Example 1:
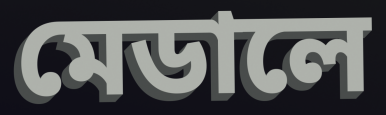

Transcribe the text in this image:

মেডালে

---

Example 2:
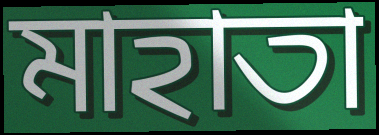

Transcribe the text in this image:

মাহাতা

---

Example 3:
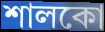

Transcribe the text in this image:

শালকো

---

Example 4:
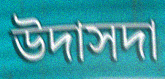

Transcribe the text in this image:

উদাসদা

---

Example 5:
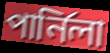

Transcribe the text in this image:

পার্নিলা